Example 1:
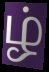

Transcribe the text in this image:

ழ்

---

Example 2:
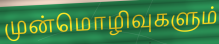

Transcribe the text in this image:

முன்மொழிவுகளும்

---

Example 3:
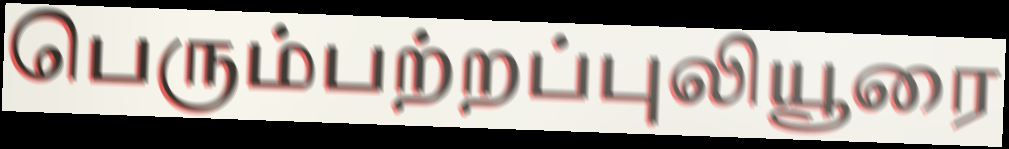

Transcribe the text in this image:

பெரும்பற்றப்புலியூரை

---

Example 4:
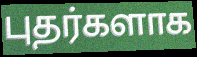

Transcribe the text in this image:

புதர்களாக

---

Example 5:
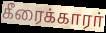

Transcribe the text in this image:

கீரைக்காரர்